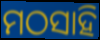
ମଠସାହି